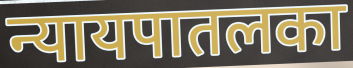
न्यायपातलका